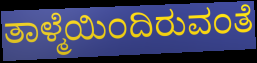
ತಾಳ್ಮೆಯಿಂದಿರುವಂತೆ